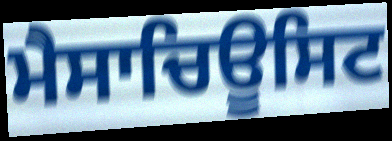
ਮੈਸਾਚਿਊਸਿਟ